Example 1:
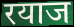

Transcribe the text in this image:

रयाज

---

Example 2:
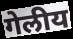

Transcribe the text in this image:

गेलीय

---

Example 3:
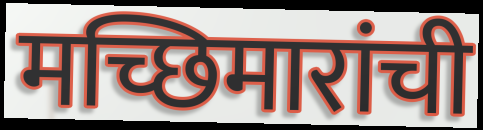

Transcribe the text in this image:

मच्छिमारांची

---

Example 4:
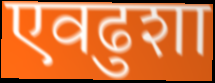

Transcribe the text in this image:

एवढुशा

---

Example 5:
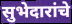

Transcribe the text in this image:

सुभेदारांचे